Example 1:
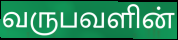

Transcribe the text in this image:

வருபவளின்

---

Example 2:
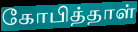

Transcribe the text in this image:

கோபித்தாள்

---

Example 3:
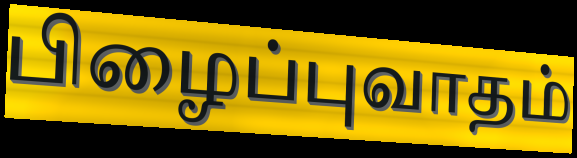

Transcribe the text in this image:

பிழைப்புவாதம்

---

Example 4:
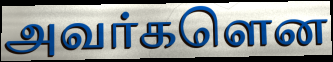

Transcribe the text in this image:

அவர்களென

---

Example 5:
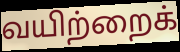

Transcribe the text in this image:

வயிற்றைக்